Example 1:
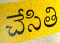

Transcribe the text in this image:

చేసితి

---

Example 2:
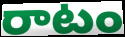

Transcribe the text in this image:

రాటం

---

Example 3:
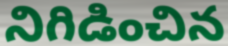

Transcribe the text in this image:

నిగిడించిన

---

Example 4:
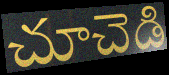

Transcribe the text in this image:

చూచెడి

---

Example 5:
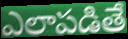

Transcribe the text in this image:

ఎలాపడితే